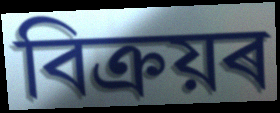
বিক্ৰয়ৰ